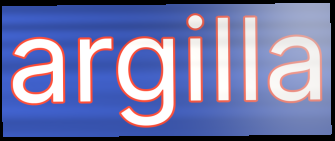
argilla